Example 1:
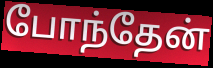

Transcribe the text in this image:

போந்தேன்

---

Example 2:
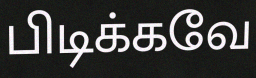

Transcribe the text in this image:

பிடிக்கவே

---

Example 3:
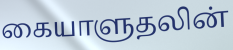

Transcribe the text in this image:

கையாளுதலின்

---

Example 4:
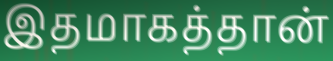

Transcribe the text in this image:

இதமாகத்தான்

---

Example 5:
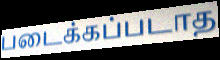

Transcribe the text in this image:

படைக்கப்படாத